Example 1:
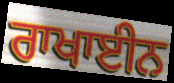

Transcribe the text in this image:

ਰਾਖਾਈਨ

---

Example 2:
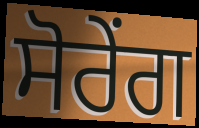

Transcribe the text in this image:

ਸੋਰੇਂਗ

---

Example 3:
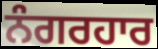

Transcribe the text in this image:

ਨੰਗਰਹਾਰ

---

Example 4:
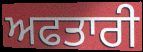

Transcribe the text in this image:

ਅਫਤਾਰੀ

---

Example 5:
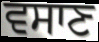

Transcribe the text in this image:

ਵਸਾਣ